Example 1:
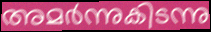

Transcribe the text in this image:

അമർന്നുകിടന്നു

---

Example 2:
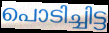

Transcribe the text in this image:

പൊടിച്ചിട്ട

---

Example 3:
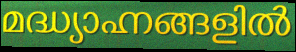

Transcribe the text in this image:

മദ്ധ്യാഹ്നങ്ങളിൽ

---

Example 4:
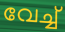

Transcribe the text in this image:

വേച്ച്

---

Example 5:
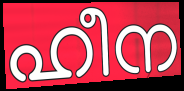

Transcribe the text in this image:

ഹീന